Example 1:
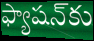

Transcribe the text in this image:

ఫ్యాషన్‌కు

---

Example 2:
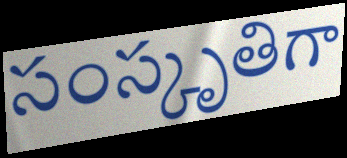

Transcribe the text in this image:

సంస్కృతిగా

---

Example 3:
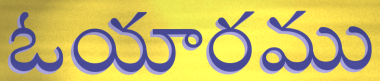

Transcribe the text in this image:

ఓయారము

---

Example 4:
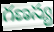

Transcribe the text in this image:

గణస్య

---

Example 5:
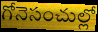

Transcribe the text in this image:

గోనెసంచుల్లో